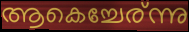
ആകെച്ചേര്ന്നു